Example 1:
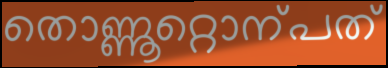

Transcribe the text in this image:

തൊണ്ണൂറ്റൊന്പത്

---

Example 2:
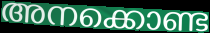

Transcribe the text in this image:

അനക്കൊണ്ട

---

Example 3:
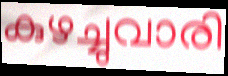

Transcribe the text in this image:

കുഴച്ചുവാരി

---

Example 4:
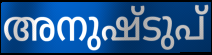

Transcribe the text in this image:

അനുഷ്ടുപ്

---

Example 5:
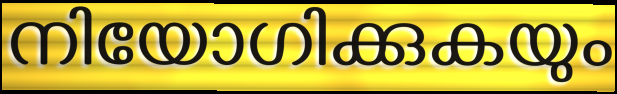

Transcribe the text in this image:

നിയോഗിക്കുകയും